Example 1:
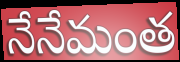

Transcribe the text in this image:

నేనేమంత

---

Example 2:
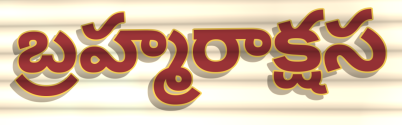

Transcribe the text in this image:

బ్రహ్మరాక్షస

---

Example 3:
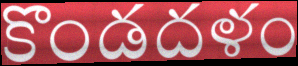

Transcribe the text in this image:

కొండదళం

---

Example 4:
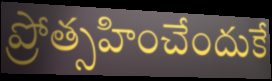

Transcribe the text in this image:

ప్రోత్సహించేందుకే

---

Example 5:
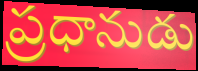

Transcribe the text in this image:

ప్రధానుడు